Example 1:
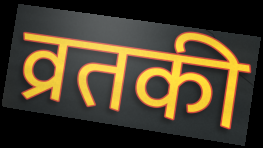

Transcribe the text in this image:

व्रतकी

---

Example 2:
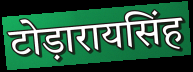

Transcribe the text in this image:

टोड़ारायसिंह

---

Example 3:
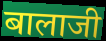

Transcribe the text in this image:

बालाजी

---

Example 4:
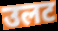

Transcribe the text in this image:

उलट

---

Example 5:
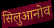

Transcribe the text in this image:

सिलुआनोव